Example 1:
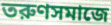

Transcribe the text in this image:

তরুণসমাজে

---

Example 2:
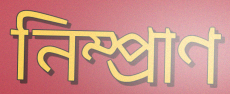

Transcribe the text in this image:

নিম্প্রাণ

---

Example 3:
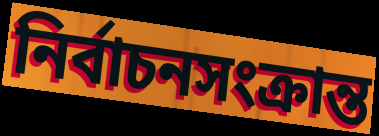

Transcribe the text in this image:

নির্বাচনসংক্রান্ত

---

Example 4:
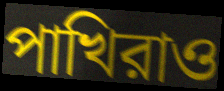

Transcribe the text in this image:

পাখিরাও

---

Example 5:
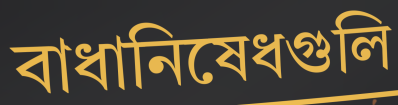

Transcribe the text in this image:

বাধানিষেধগুলি